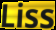
Liss